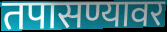
तपासण्यावर